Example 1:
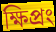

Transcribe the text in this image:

ক্ষিপ্রং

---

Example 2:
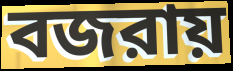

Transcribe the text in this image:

বজরায়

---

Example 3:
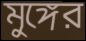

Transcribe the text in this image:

মুঙ্গের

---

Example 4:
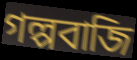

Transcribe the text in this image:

গল্পবাজি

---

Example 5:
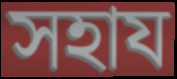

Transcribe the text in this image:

সহায